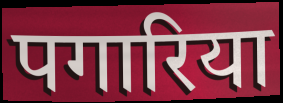
पगारिया